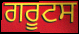
ਗਰੂਟਸ